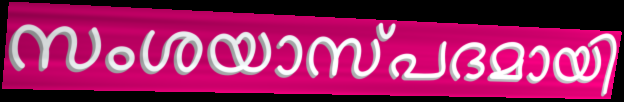
സംശയാസ്പദമായി